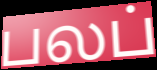
பலப்